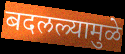
बदलल्यामुळे